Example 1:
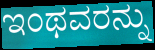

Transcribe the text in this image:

ಇಂಥವರನ್ನು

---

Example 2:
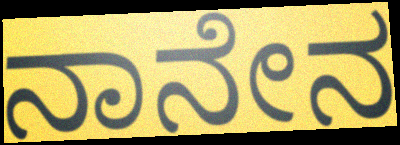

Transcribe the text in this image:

ನಾನೇನ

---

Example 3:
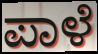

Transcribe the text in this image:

ಪಾಳೆ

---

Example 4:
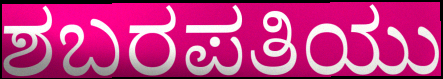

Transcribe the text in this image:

ಶಬರಪತಿಯು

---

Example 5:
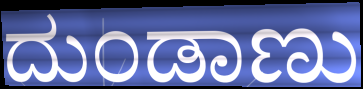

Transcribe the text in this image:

ದುಂಡಾಣು